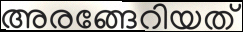
അരങ്ങേറിയത്